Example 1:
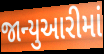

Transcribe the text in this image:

જાન્યુઆરીમાં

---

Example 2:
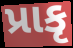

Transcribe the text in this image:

પ્રાકૃ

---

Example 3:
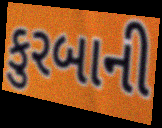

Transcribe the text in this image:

કુરબાની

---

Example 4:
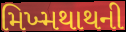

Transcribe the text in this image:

મિખ્મથાથની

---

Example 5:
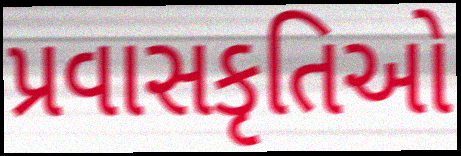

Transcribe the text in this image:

પ્રવાસકૃતિઓ